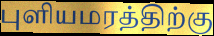
புளியமரத்திற்கு